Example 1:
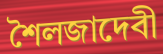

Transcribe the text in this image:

শৈলজাদেবী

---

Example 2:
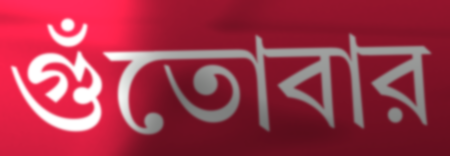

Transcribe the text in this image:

গুঁতোবার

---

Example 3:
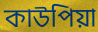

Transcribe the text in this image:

কাউপিয়া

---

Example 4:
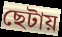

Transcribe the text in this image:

ছেটায়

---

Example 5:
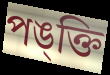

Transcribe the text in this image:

পঙ্‌ক্তি